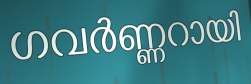
ഗവർണ്ണറായി